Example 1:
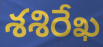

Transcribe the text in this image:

శశిరేఖ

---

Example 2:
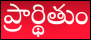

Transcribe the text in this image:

ప్రార్థితుం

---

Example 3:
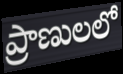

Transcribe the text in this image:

ప్రాణులలో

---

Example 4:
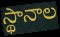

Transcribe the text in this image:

స్థానాల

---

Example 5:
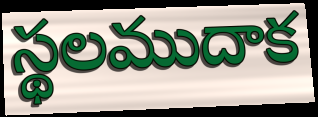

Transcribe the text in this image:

స్థలముదాక